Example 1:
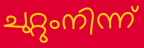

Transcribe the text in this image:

ചുറ്റുംനിന്ന്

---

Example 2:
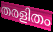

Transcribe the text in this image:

തരളിതം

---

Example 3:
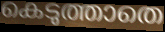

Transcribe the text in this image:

കെടുത്താതെ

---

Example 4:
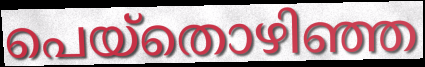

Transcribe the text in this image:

പെയ്തൊഴിഞ്ഞ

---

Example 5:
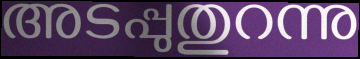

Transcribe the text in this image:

അടപ്പുതുറന്നു